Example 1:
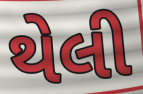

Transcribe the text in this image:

થેલી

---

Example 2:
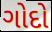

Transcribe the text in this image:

ગોદો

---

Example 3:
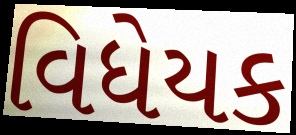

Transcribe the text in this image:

વિધેયક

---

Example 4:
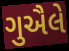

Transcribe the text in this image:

ગુઐલે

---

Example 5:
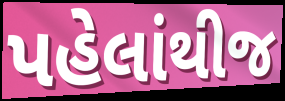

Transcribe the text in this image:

પહેલાંથીજ